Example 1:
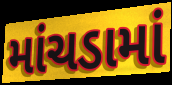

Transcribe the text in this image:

માંચડામાં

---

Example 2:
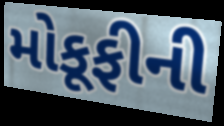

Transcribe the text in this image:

મોકૂફીની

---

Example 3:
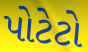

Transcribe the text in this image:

પોટેટો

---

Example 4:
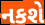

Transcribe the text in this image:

નકશે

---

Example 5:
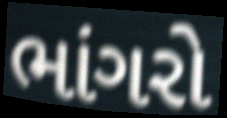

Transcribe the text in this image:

ભાંગરો